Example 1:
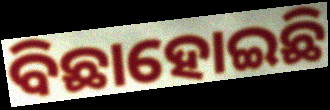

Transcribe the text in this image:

ବିଛାହୋଇଛି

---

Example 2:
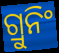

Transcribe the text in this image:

ଗ୍ରୁନିଂ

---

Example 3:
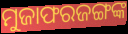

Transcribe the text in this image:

ମୁଜାଫରଜଙ୍ଗଙ୍କ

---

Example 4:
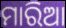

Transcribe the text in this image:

ମାରିଆ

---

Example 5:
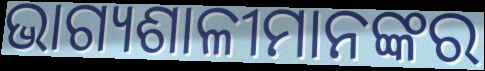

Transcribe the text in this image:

ଭାଗ୍ୟଶାଳୀମାନଙ୍କର